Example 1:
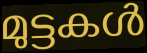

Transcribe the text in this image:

മുട്ടകൾ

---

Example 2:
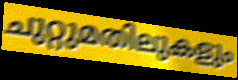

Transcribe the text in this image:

ചുറ്റുമതിലുകളും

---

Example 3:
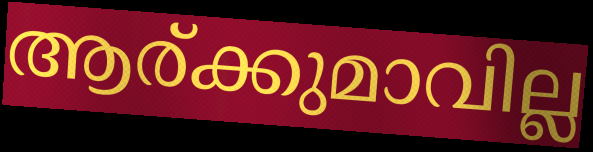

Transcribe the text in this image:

ആര്ക്കുമാവില്ല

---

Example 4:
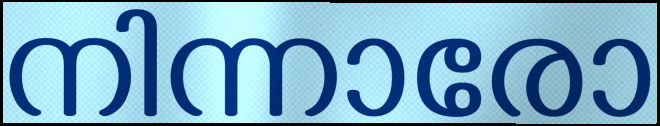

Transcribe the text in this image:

നിന്നാരോ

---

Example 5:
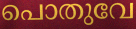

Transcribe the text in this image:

പൊതുവേ